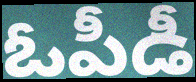
ఓపీడీ